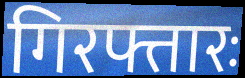
गिरफ्तारः